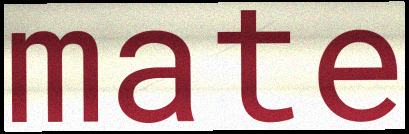
mate